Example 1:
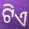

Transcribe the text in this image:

ଟିଏ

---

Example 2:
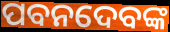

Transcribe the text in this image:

ପବନଦେବଙ୍କ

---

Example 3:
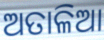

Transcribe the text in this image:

ଅତାଳିଆ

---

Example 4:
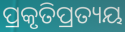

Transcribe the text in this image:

ପ୍ରକୃତିପ୍ରତ୍ୟୟ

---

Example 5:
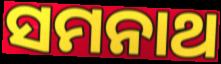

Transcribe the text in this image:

ସମନାଥ